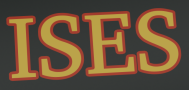
ISES